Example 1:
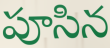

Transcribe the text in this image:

పూసిన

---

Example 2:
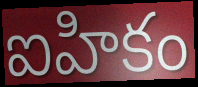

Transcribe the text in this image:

ఐహికం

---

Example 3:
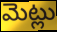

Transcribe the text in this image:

మెట్లు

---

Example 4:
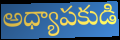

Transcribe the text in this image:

అధ్యాపకుడి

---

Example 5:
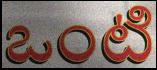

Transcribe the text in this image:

ఒంటి